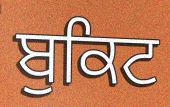
ਬੁਕਿਟ